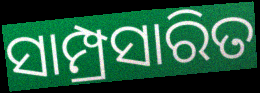
ସାମ୍ପ୍ରସାରିତ